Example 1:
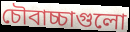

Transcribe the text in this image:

চৌবাচ্চাগুলো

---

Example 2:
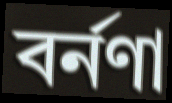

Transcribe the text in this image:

বর্নণা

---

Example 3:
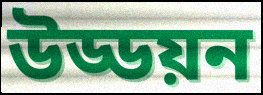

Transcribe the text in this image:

উড্ডয়ন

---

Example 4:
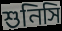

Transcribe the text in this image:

শুনিসি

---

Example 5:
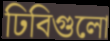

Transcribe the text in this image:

ঢিবিগুলো